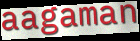
aagaman